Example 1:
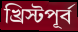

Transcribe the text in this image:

খ্রিস্টপূর্ব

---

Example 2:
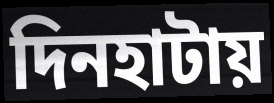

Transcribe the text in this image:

দিনহাটায়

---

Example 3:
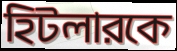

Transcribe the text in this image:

হিটলারকে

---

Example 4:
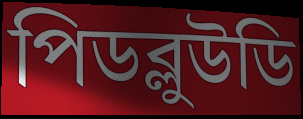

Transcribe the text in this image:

পিডব্লুউডি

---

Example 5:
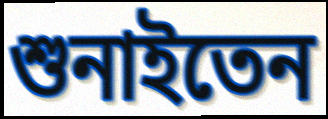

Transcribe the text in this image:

শুনাইতেন